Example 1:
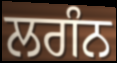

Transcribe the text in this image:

ਲਗੰਨ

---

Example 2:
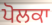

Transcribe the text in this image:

ਪੋਲਕਾ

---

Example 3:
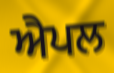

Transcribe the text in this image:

ਐਪਲ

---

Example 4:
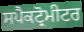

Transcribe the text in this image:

ਸਪੈਕਟ੍ਰੋਮੀਟਰ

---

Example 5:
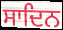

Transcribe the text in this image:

ਸਾਦਿਨ